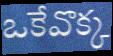
ఒకేవొక్క